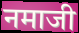
नमाजी